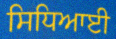
ਸਿਧਿਆਈ